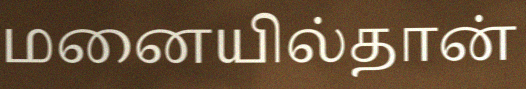
மனையில்தான்